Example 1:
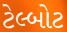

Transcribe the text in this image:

ટેલ્બોટ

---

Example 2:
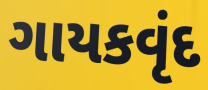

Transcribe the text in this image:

ગાયકવૃંદ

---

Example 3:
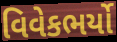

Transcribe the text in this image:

વિવેકભર્યો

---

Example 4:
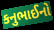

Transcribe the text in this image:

કનુભાઈનો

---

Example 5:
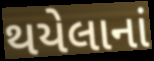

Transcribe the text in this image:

થયેલાનાં